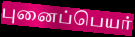
புனைப்பெயர்